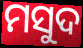
ମସୁଦ